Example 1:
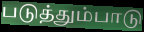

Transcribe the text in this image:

படுத்தும்பாடு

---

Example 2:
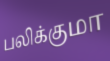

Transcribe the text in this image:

பலிக்குமா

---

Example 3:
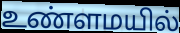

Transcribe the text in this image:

உண்ளமயில்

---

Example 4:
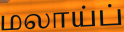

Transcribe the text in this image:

மலாய்ப்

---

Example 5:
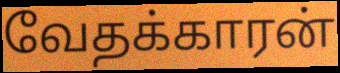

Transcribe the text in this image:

வேதக்காரன்